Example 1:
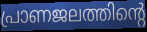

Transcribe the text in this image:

പ്രാണജലത്തിന്റെ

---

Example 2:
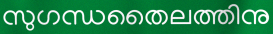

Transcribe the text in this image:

സുഗന്ധതൈലത്തിനു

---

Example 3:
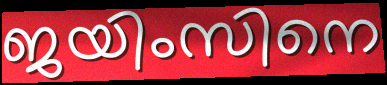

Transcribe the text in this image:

ജയിംസിനെ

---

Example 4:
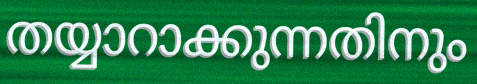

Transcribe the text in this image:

തയ്യാറാക്കുന്നതിനും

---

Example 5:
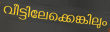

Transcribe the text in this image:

വീട്ടിലേക്കെങ്കിലും